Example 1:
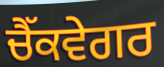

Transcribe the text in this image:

ਚੈੱਕਵੇਗਰ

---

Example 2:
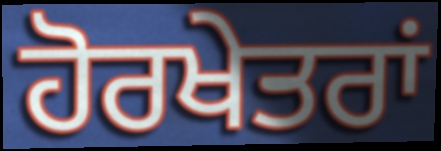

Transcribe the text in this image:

ਹੋਰਖੇਤਰਾਂ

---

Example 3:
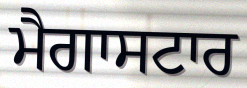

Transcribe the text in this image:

ਮੈਗਾਸਟਾਰ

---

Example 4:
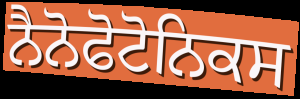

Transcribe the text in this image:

ਨੈਨੋਫੋਟੋਨਿਕਸ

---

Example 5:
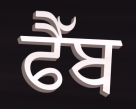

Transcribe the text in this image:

ਫੈੱਬ